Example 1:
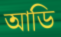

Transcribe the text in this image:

আডি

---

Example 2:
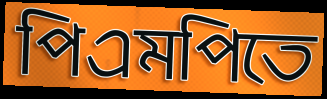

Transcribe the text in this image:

পিএমপিতে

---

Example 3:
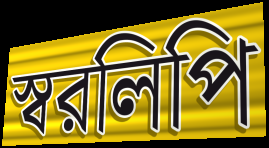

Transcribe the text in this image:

স্বরলিপি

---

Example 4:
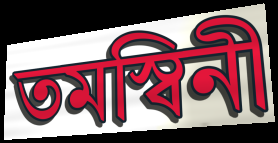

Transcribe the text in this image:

তমস্বিনী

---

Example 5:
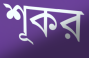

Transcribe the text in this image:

শূকর